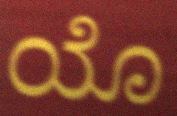
ಯೊ